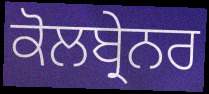
ਕੋਲਬ੍ਰੇਨਰ